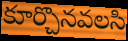
కూర్చొనవలసి